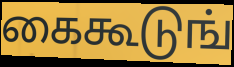
கைகூடுங்